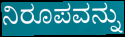
ನಿರೂಪವನ್ನು